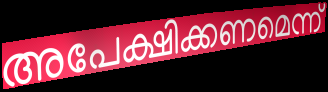
അപേക്ഷിക്കണമെന്ന്